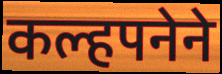
कल्हपनेने